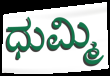
ಧುಮ್ಮಿ